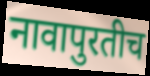
नावापुरतीच